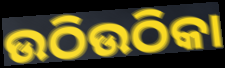
ଉଠିଉଠିକା